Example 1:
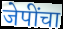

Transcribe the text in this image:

जेपींचा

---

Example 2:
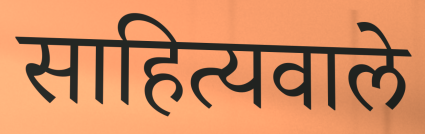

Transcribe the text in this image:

साहित्यवाले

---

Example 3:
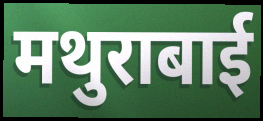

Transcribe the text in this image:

मथुराबाई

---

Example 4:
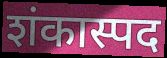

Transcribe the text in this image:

शंकास्पद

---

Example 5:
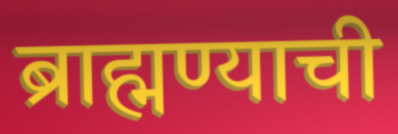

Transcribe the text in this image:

ब्राह्मण्याची